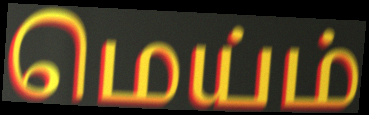
மெய்ம்